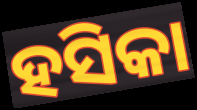
ହସିକା